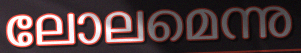
ലോലമെന്നു